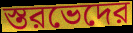
স্তরভেদের